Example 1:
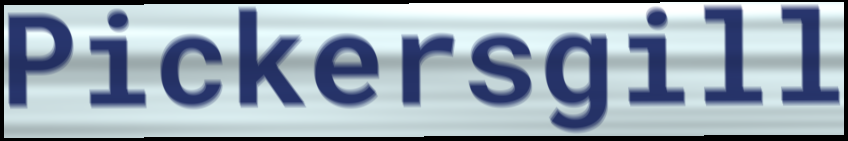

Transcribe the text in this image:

Pickersgill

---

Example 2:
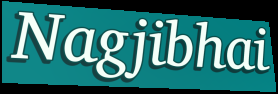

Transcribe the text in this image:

Nagjibhai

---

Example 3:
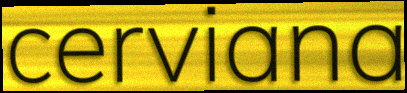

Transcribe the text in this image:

cerviana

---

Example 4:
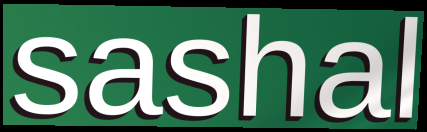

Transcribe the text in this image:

sashal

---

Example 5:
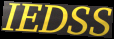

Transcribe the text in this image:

IEDSS